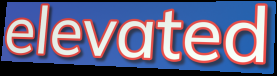
elevated